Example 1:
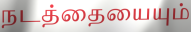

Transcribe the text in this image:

நடத்தையையும்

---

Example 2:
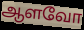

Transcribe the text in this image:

ஆளவோ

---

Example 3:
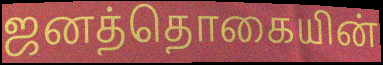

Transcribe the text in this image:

ஜனத்தொகையின்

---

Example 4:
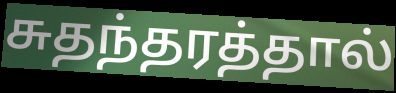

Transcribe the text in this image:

சுதந்தரத்தால்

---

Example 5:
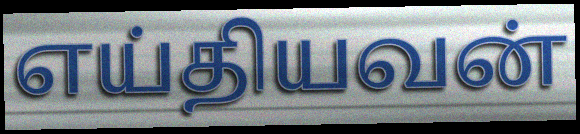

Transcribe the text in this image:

எய்தியவன்